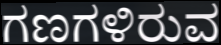
ಗಣಗಳಿರುವ